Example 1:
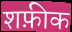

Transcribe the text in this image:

शफ़ीक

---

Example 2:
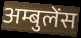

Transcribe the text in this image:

अम्बुलेंस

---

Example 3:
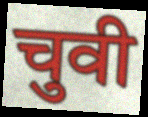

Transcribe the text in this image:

चुवी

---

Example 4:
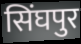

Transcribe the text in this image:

सिंघपुर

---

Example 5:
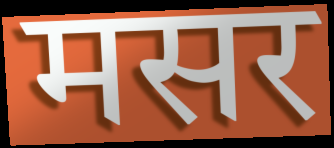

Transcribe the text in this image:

मसर